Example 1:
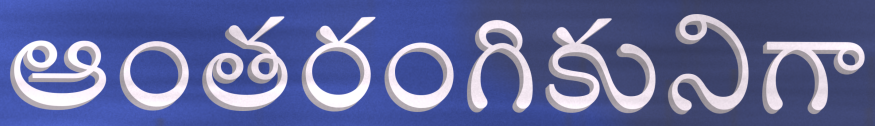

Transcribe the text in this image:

ఆంతరంగికునిగా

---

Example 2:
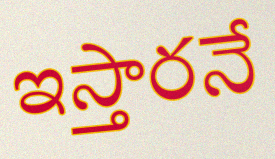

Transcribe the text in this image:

ఇస్తారనే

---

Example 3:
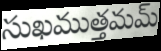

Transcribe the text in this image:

సుఖముత్తమమ్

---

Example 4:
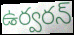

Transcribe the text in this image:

ఉర్వరన్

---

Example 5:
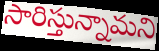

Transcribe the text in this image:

సారిస్తున్నామని